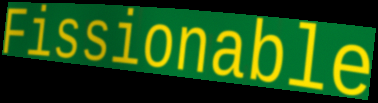
Fissionable